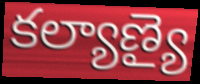
కల్యాణ్యై